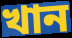
খান